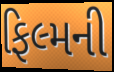
ફિલ્મની